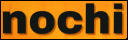
nochi